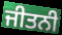
ਜੀਤਨੀ